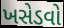
ખસેડવો